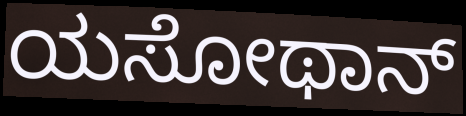
ಯಸೋಥಾನ್